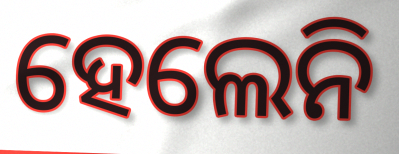
ହେଲେନି